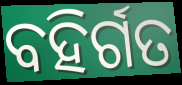
ବହିର୍ଗତ